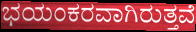
ಭಯಂಕರವಾಗಿರುತ್ತವೆ